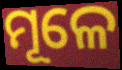
ମୂଳେ